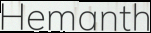
Hemanth